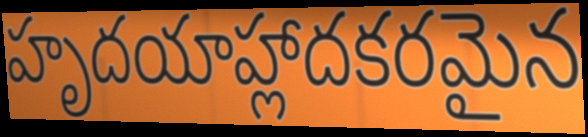
హృదయాహ్లాదకరమైన